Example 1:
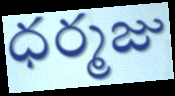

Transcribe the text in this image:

ధర్మజు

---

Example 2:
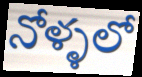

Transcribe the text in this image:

నోళ్ళలో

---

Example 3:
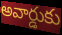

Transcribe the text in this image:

అవార్డుకు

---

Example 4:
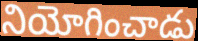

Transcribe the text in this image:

నియోగించాడు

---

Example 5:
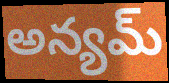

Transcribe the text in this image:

అన్యమ్